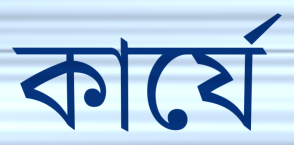
কার্যে